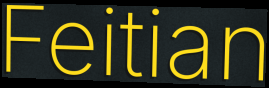
Feitian